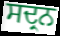
ਸਦ੍ਰਨ